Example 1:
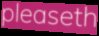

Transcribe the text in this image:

pleaseth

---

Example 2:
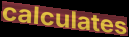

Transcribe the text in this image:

calculates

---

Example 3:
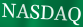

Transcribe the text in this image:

NASDAQ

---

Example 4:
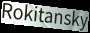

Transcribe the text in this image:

Rokitansky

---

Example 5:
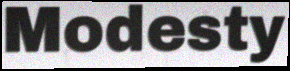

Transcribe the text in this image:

Modesty